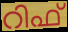
റിഫ്